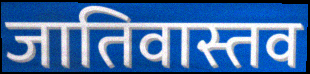
जातिवास्तव